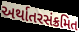
અર્થાતરસંક્રમિત